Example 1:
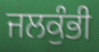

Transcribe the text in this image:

ਜਲਕੁੰਭੀ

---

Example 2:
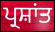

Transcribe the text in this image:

ਪ੍ਰਸ਼ਾਂਤ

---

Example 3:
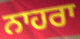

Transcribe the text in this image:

ਨਾਹਰਾ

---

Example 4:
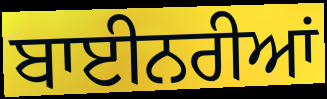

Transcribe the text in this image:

ਬਾਈਨਰੀਆਂ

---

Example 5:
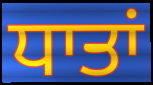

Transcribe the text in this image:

ਧਾਤਾਂ